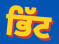
ਭਿੱਟ